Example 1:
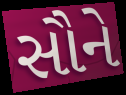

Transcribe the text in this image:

સૌને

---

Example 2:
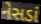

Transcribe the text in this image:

નેસડાં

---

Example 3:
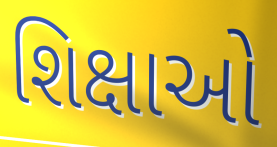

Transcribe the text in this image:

શિક્ષાઓ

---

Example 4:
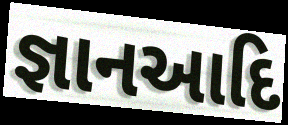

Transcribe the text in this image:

જ્ઞાનઆદિ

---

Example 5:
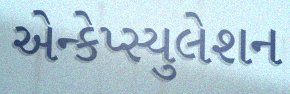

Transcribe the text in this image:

એન્કેપ્સ્યુલેશન